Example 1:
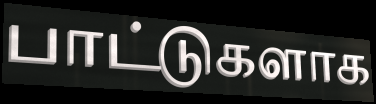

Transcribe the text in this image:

பாட்டுகளாக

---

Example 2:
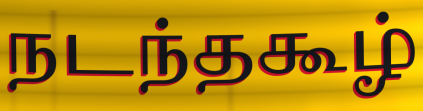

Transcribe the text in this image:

நடந்தகூழ்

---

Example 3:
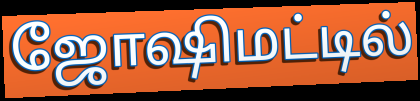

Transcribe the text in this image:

ஜோஷிமட்டில்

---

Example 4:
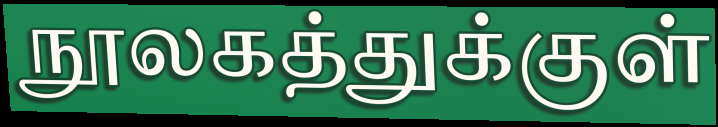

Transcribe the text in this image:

நூலகத்துக்குள்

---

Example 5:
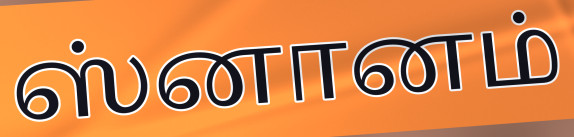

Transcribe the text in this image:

ஸ்னானம்